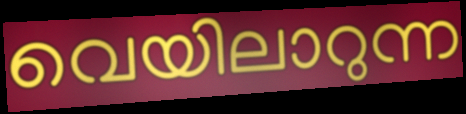
വെയിലാറുന്ന